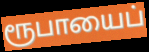
ரூபாயைப்